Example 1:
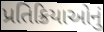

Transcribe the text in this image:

પ્રતિક્રિયાઓનું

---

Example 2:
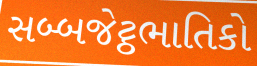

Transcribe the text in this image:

સબ્બજેટ્ઠભાતિકો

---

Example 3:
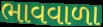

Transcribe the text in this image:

ભાવવાળા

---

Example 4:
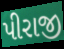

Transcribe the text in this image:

પીરાજી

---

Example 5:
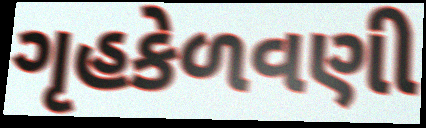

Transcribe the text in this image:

ગૃહકેળવણી